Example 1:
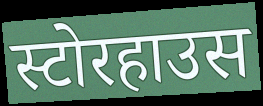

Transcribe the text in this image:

स्टोरहाउस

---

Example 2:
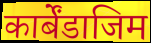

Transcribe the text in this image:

कार्बेंडाजिम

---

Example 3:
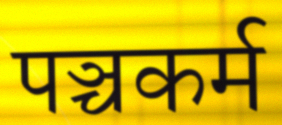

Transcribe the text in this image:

पञ्चकर्म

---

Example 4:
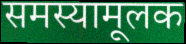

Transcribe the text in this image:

समस्यामूलक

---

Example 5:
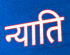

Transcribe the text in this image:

न्याति